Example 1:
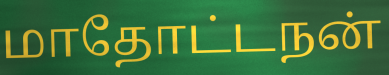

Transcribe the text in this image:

மாதோட்டநன்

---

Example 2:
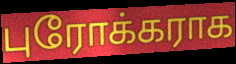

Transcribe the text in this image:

புரோக்கராக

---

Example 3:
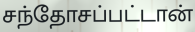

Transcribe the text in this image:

சந்தோசப்பட்டான்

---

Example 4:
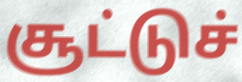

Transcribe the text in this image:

சூட்டுச்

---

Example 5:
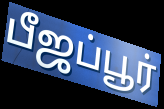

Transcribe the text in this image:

பீஜப்பூர்